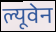
ल्यूवेन